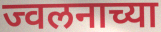
ज्वलनाच्या